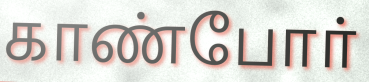
காண்போர்